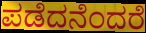
ಪಡೆದನೆಂದರೆ